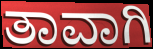
ತಾವಾಗಿ